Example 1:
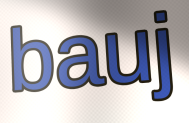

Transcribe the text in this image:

bauj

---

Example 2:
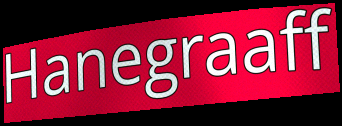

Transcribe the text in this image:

Hanegraaff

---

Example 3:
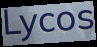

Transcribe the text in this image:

Lycos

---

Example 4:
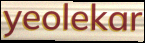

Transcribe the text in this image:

yeolekar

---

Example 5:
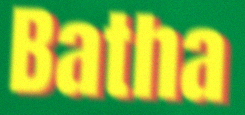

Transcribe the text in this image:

Batha